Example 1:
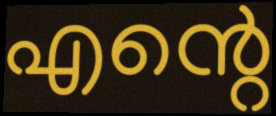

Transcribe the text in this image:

എന്റെ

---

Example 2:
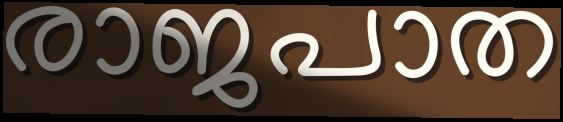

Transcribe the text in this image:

രാജപാത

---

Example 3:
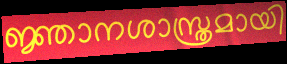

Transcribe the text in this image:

ജ്ഞാനശാസ്ത്രമായി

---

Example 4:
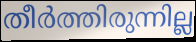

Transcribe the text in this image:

തീർത്തിരുന്നില്ല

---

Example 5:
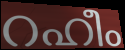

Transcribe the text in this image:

റഹീം